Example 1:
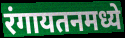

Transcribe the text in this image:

रंगायतनमध्ये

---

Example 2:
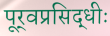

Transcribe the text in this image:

पूर्वप्रसिद्धीः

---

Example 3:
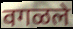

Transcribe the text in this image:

वगळले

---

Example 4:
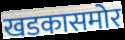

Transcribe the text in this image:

खडकासमोर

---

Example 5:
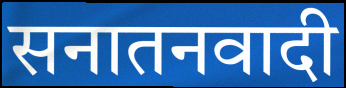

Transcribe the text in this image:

सनातनवादी